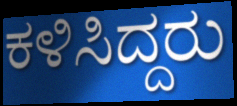
ಕಳಿಸಿದ್ದರು